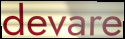
devare